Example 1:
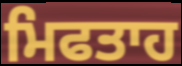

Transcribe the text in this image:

ਮਿਫਤਾਹ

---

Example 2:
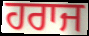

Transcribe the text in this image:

ਹਰਾਜ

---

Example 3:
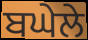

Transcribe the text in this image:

ਬਘੇਲੇ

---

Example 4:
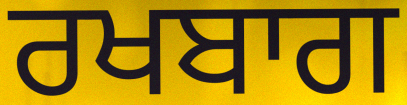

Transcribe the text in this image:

ਰਖਬਾਗ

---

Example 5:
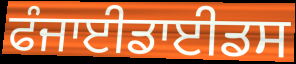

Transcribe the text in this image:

ਫੰਜਾਈਡਾਈਡਸ